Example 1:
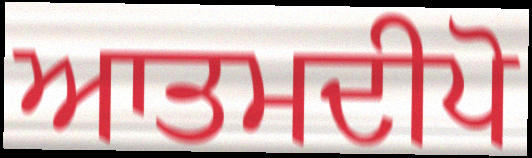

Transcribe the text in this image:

ਆਤਮਦੀਪੋ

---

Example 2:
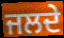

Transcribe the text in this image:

ਜਲਦੇ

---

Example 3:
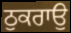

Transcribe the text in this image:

ਠੁਕਰਾਉ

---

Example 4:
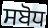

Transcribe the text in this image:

ਸਬੋਧ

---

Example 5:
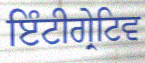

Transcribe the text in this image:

ਇੰਟੀਗ੍ਰੇਟਿਵ